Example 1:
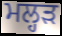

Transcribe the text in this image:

ਮਲ੍ਹੜ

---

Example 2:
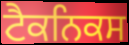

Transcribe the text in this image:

ਟੈਕਨਿਕਸ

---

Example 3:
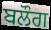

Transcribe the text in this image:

ਬਲੌਗ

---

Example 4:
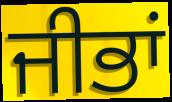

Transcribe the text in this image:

ਜੀਭਾਂ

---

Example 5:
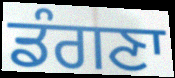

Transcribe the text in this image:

ਡੰਗਣਾ